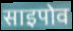
साइपोव